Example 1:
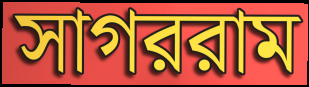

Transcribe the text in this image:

সাগররাম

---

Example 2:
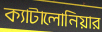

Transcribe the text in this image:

ক্যাটালোনিয়ার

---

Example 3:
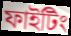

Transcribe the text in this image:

ফাইটিং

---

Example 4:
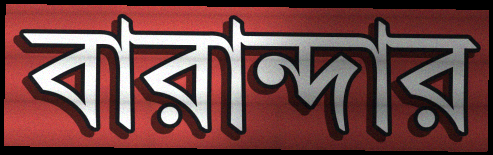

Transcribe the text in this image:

বারান্দার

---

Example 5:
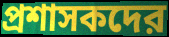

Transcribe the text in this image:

প্রশাসকদের